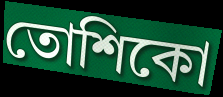
তোশিকো